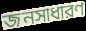
জনসাধারণ